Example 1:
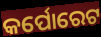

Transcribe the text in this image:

କର୍ପୋରେଟ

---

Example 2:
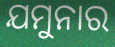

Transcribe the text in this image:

ଯମୁନାର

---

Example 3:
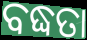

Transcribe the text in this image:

ବଦ୍ଧତା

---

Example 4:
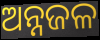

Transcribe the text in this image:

ଅନ୍ନଜଳ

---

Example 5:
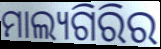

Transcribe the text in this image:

ମାଲ୍ୟଗିରିର